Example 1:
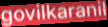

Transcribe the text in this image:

govilkaranil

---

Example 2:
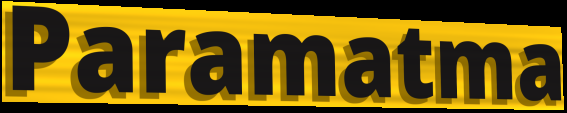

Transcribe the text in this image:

Paramatma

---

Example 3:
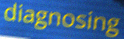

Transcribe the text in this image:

diagnosing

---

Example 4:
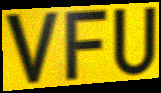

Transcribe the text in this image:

VFU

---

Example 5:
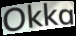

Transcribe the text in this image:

Okka